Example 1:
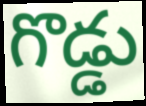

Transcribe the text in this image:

గొడ్డు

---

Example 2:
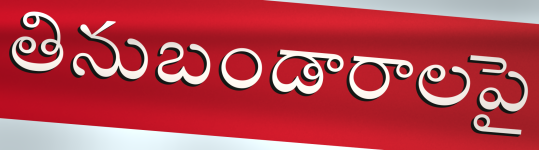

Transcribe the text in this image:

తినుబండారాలపై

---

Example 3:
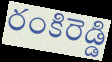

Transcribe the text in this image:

రంకిరెడ్డి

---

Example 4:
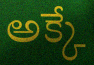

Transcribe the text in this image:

అక్కే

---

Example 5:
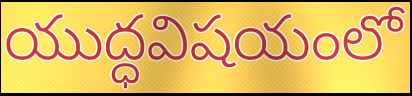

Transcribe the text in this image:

యుద్ధవిషయంలో